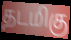
தடமிகு